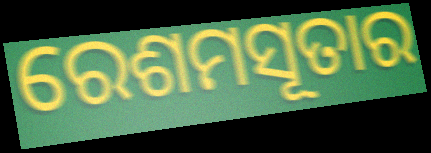
ରେଶମସୂତାର